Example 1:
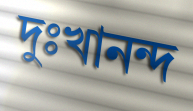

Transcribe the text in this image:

দুঃখানন্দ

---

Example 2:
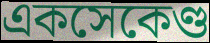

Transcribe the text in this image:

একসেকেণ্ড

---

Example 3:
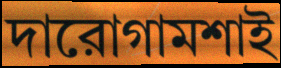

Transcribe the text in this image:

দারোগামশাই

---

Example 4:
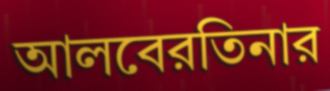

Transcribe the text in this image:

আলবেরতিনার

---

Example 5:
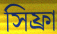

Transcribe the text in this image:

সিফ্রা